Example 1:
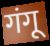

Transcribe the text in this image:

गंगू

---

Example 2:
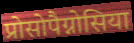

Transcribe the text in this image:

प्रोसोपैग्नोसिया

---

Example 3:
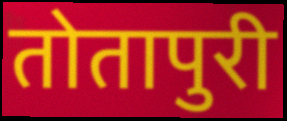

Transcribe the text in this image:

तोतापुरी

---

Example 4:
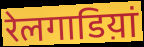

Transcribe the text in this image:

रेलगाडिय़ां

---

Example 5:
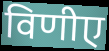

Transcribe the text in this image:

विणीए